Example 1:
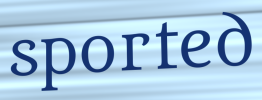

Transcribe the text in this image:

sported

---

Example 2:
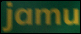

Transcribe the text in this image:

jamu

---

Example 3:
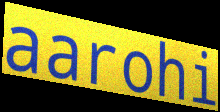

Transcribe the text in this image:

aarohi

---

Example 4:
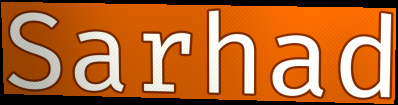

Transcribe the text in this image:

Sarhad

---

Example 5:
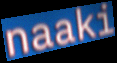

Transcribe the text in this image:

naaki